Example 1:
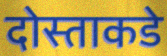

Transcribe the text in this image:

दोस्ताकडे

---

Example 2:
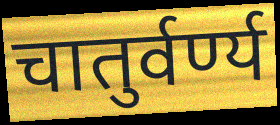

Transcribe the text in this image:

चातुर्वर्ण्य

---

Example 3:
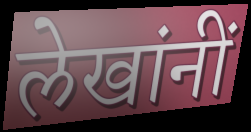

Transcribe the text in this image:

लेखांनीं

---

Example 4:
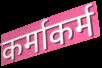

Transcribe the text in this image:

कर्माकर्म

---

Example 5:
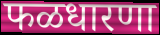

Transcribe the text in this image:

फळधारणा